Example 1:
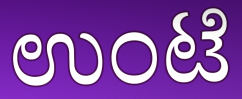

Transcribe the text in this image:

ಉಂಟೆ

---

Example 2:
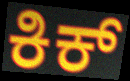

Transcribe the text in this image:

ಕಿಕ್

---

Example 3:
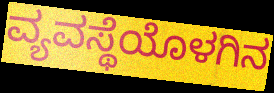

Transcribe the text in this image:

ವ್ಯವಸ್ಥೆಯೊಳಗಿನ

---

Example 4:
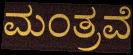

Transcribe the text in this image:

ಮಂತ್ರವೆ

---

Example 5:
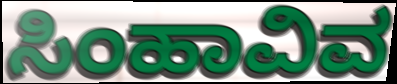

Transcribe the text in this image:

ಸಿಂಹಾವಿವ